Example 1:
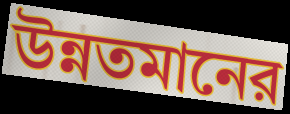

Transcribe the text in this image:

উন্নতমানের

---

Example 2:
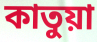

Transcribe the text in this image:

কাতুয়া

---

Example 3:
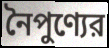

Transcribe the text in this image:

নৈপুণ্যের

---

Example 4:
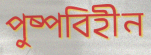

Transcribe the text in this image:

পুষ্পবিহীন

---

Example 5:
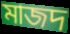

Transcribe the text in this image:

মাজদ